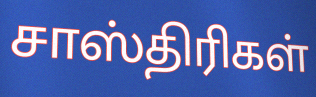
சாஸ்திரிகள்